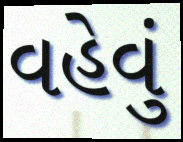
વહેવું